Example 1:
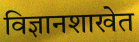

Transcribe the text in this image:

विज्ञानशाखेत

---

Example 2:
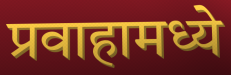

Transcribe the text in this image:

प्रवाहामध्ये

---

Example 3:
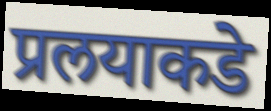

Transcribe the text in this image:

प्रलयाकडे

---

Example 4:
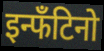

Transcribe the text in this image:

इन्फँटिनो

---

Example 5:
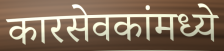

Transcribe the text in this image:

कारसेवकांमध्ये